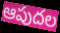
ఆపుదల